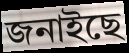
জনাইছে